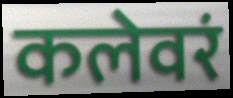
कलेवरं